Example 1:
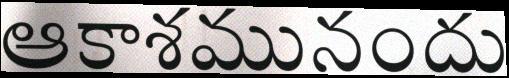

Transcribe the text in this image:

ఆకాశమునందు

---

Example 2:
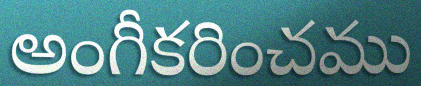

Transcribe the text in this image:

అంగీకరించము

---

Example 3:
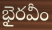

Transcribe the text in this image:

భైరవీం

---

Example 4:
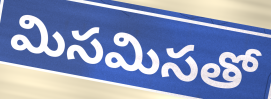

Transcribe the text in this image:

మిసమిసతో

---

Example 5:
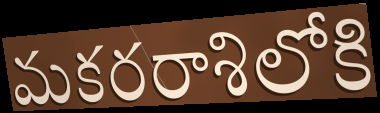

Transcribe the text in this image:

మకరరాశిలోకి